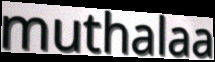
muthalaa